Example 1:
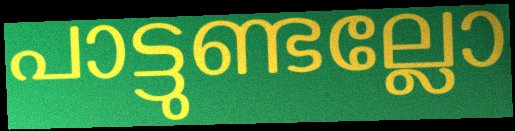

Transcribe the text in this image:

പാട്ടുണ്ടല്ലോ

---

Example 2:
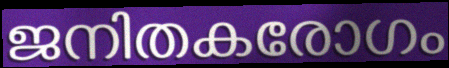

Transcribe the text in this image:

ജനിതകരോഗം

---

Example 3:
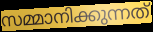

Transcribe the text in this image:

സമ്മാനിക്കുന്നത്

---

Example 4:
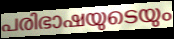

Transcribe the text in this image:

പരിഭാഷയുടെയും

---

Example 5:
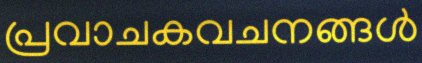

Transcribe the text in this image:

പ്രവാചകവചനങ്ങൾ